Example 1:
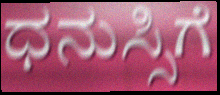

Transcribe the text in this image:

ಧನುಸ್ಸಿಗೆ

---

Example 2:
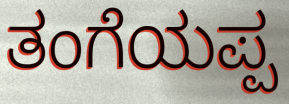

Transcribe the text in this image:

ತಂಗೆಯಪ್ಪ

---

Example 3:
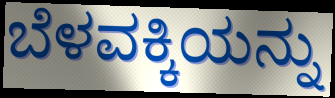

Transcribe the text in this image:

ಬೆಳವಕ್ಕಿಯನ್ನು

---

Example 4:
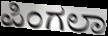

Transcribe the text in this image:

ಪಿಂಗಲಾ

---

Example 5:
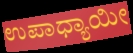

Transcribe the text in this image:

ಉಪಾಧ್ಯಾಯೀ